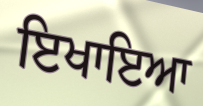
ਇਖਾਇਆ